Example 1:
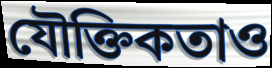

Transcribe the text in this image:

যৌক্তিকতাও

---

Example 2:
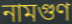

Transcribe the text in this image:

নামগুণ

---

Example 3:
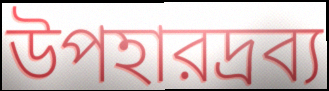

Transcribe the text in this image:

উপহারদ্রব্য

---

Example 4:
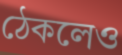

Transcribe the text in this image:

ঠেকলেও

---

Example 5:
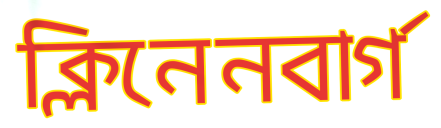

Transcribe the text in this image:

ক্লিনেনবার্গ